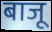
बाजू